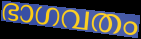
ഭാഗവതം